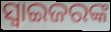
ସ୍ଵାଇଜରଙ୍କ